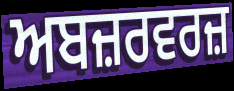
ਅਬਜ਼ਰਵਰਜ਼